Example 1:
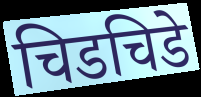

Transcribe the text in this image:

चिडचिडे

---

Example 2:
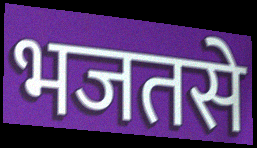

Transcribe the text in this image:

भजतसे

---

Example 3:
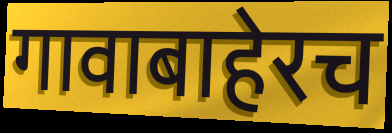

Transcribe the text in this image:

गावाबाहेरच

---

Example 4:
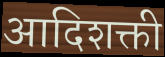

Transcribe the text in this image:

आदिशक्ती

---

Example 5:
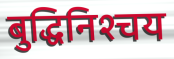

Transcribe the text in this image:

बुद्धिनिश्चय